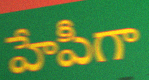
హేపీగా